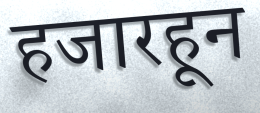
हजारहून